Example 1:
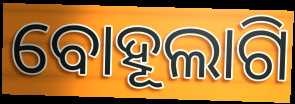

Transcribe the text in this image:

ବୋହୂଲାଗି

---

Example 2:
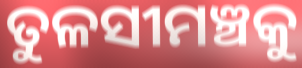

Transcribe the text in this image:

ତୁଳସୀମଞ୍ଚକୁ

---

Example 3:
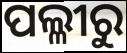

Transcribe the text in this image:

ପଲ୍ଳୀରୁ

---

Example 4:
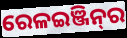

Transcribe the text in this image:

ରେଳଇଞ୍ଜିନ୍‌ର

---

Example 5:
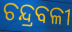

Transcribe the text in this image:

ଚନ୍ଦ୍ରବଳୀ